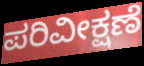
ಪರಿವೀಕ್ಷಣೆ